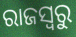
ରାଜସ୍ବରୁ